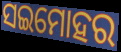
ସଇମୋହର